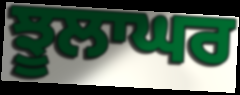
ਝੂਲਾਘਰ